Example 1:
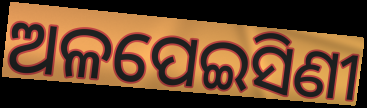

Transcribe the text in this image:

ଅଳପେଇସିଣୀ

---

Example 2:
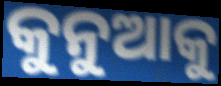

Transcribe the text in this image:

କୁନୁଆକୁ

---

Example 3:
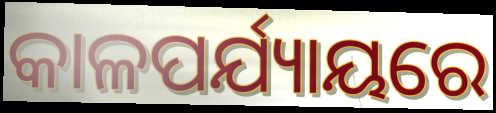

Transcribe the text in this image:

କାଳପର୍ଯ୍ୟାୟରେ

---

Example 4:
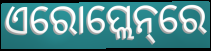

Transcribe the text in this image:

ଏରୋପ୍ଲେନ୍‌ରେ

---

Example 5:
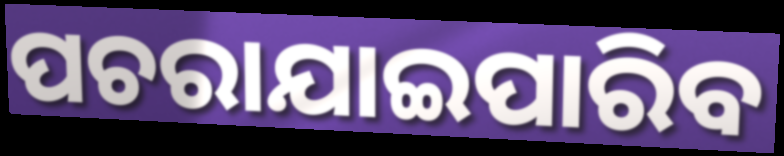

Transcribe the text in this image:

ପଚରାଯାଇପାରିବ